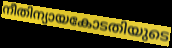
നീതിന്യായകോടതിയുടെ